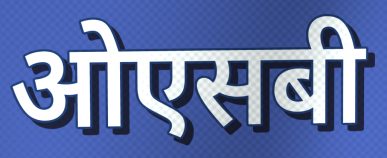
ओएसबी